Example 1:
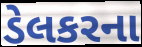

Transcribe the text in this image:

ડેલકરના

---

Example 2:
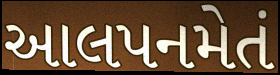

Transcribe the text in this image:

આલપનમેતં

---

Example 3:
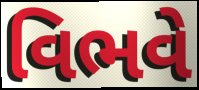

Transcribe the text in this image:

વિભવે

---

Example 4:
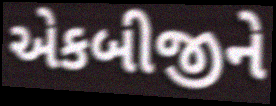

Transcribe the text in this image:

એકબીજીને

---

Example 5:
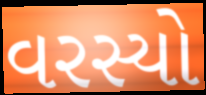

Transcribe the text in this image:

વરસ્યો